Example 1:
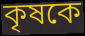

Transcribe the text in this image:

কৃষকে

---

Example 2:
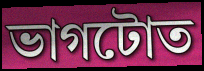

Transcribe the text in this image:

ভাগটোত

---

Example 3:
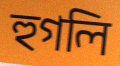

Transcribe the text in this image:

হুগলি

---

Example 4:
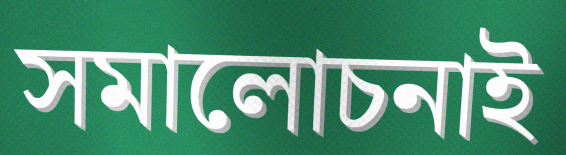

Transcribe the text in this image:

সমালোচনাই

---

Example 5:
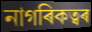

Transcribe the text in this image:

নাগৰিকত্বৰ